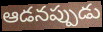
ఆడనప్పుడు